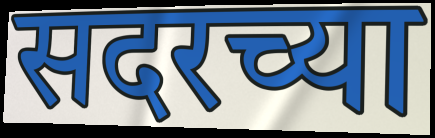
सदरच्या